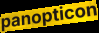
panopticon